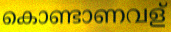
കൊണ്ടാണവള്